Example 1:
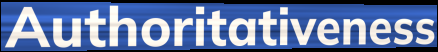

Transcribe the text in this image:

Authoritativeness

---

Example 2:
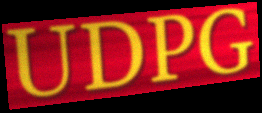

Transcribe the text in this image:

UDPG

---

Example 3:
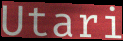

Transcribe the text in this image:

Utari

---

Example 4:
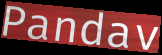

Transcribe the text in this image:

Pandav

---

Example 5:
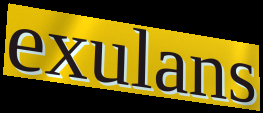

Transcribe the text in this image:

exulans